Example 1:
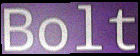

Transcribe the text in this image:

Bolt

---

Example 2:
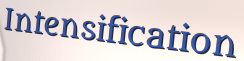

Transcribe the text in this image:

Intensification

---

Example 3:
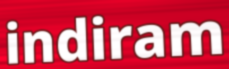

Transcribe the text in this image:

indiram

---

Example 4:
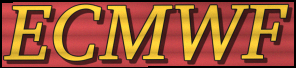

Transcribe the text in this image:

ECMWF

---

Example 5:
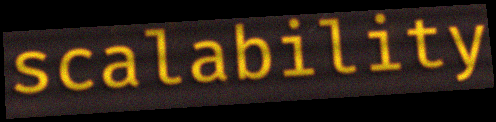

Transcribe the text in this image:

scalability